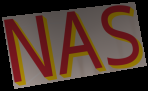
NAS